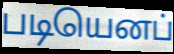
படியெனப்